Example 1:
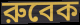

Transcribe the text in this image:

রুবেক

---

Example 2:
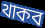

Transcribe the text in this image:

থাকব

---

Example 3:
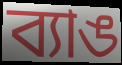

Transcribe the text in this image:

ব্যাঙ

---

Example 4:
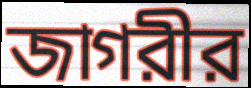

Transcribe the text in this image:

জাগরীর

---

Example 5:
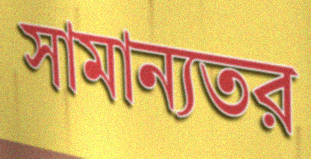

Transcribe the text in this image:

সামান্যতর